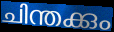
ചിന്തക്കും